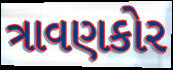
ત્રાવણકોર